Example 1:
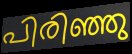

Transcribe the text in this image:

പിരിഞ്ഞു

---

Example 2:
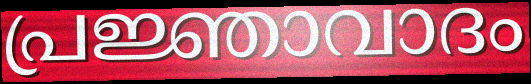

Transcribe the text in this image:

പ്രജ്ഞാവാദം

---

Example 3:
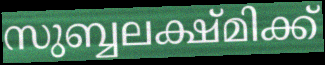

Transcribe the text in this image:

സുബ്ബലക്ഷ്മിക്ക്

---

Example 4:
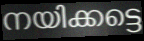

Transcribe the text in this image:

നയിക്കട്ടെ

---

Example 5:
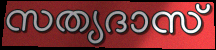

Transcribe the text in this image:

സത്യദാസ്